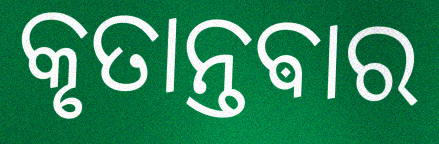
କୃତାନ୍ତଵାର